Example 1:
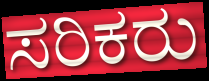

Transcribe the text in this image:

ಸರಿಕರು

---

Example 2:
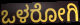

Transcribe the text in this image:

ಒಳರೋಗಿ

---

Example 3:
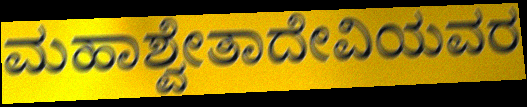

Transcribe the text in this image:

ಮಹಾಶ್ವೇತಾದೇವಿಯವರ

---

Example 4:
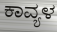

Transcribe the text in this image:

ಕಾವ್ಯಳ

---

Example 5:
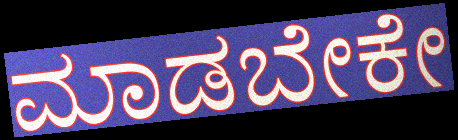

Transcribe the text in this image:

ಮಾಡಬೇಕೇ